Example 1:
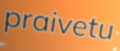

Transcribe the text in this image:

praivetu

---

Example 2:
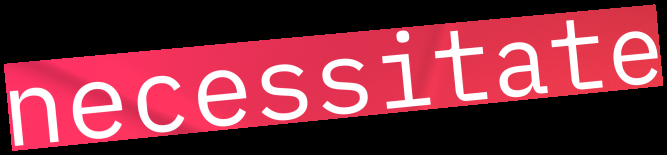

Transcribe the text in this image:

necessitate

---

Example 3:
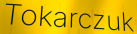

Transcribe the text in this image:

Tokarczuk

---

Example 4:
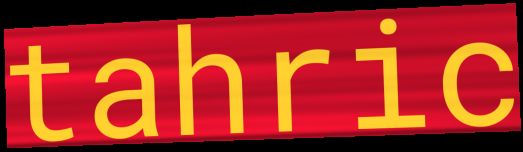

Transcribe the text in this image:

tahric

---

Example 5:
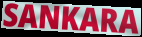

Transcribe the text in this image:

SANKARA